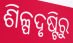
ଶିଳ୍ପଦୃଷ୍ଟିରୁ